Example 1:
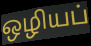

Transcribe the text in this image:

ஒழியப்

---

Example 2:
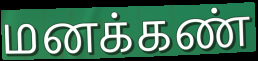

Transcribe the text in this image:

மனக்கண்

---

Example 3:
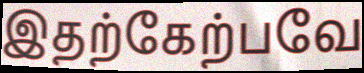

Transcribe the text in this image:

இதற்கேற்பவே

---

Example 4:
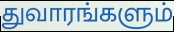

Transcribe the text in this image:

துவாரங்களும்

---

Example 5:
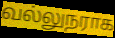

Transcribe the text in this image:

வல்லுநராக